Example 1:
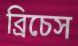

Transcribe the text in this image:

ব্রিচেস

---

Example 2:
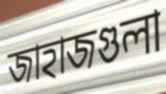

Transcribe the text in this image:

জাহাজগুলা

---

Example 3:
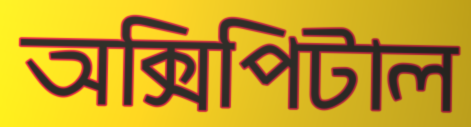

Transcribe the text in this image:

অক্সিপিটাল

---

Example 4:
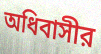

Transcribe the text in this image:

অধিবাসীর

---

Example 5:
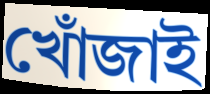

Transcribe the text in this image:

খোঁজাই